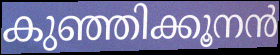
കുഞ്ഞിക്കൂനൻ